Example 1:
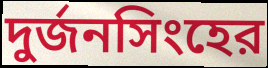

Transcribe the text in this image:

দুর্জনসিংহের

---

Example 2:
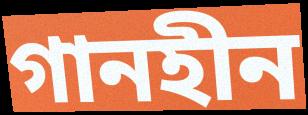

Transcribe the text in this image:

গানহীন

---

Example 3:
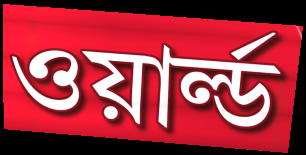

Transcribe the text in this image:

ওয়ার্ল্ড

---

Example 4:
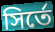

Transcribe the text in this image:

সির্তে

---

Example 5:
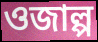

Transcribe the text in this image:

ওজাল্প